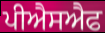
ਪੀਐਸਐਫ